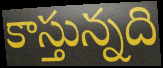
కాస్తున్నది